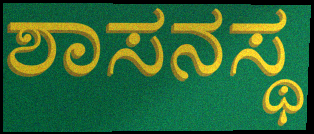
ಶಾಸನಸ್ಥ